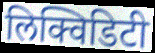
लिक्विडिटी